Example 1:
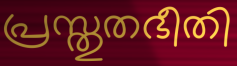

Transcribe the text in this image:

പ്രസ്തുതഭീതി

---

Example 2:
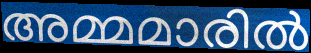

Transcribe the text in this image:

അമ്മമാരിൽ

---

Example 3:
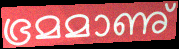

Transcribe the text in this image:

ഭ്രമമാണു്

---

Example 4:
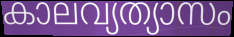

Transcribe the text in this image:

കാലവ്യത്യാസം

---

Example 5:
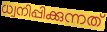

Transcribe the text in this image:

ധ്വനിപ്പിക്കുന്നത്